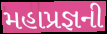
મહાપ્રજ્ઞની